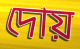
দোয়